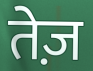
तेज़